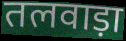
तलवाड़ा